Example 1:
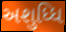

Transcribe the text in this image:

અશુધ્ધિ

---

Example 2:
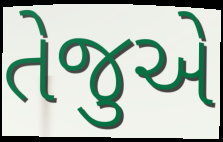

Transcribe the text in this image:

તેજુએ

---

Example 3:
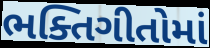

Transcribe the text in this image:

ભક્તિગીતોમાં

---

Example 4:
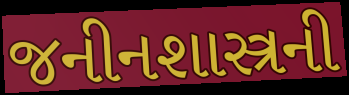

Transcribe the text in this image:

જનીનશાસ્ત્રની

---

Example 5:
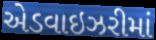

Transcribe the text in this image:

એડવાઇઝરીમાં